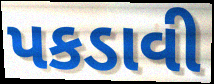
પકડાવી